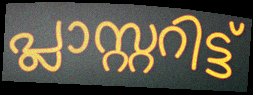
പ്ലാസ്റ്ററിട്ട്